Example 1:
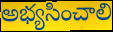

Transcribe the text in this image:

అభ్యసించాలి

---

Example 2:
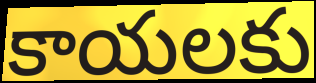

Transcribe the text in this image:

కాయలకు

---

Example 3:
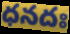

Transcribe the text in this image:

ధనదః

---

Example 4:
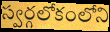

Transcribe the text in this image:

స్వర్గలోకంలోని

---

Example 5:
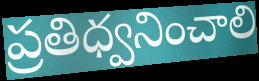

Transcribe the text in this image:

ప్రతిధ్వనించాలి